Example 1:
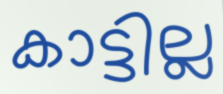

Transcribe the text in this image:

കാട്ടില്ല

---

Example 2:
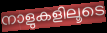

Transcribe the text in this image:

നാളുകളിലൂടെ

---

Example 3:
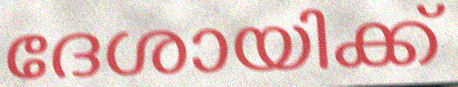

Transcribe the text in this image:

ദേശായിക്ക്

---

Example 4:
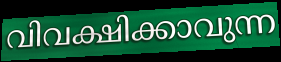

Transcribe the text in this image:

വിവക്ഷിക്കാവുന്ന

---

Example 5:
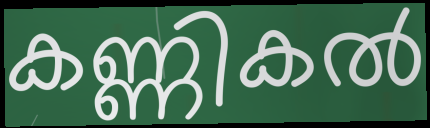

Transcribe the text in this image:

കണ്ണികൽ